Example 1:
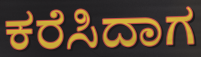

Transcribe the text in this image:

ಕರೆಸಿದಾಗ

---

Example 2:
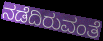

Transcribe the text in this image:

ನಡೆದಿರುವಂತೆ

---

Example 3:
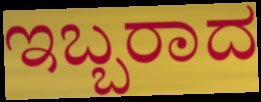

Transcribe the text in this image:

ಇಬ್ಬರಾದ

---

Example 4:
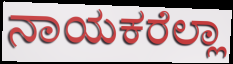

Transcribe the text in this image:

ನಾಯಕರೆಲ್ಲಾ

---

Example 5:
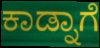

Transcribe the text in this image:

ಕಾಡ್ನಾಗೆ